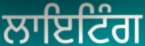
ਲਾਇਟਿੰਗ